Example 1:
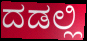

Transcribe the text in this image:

ದಡಲ್ಲಿ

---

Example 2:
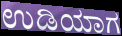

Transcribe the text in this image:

ಉಡಿಯಾಗ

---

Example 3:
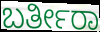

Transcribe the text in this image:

ಬರ್ತೀರಾ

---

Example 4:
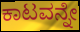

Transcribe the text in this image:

ಕಾಟವನ್ನೇ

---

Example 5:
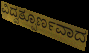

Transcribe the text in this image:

ವಿದ್ವತ್ಪೂರ್ಣವಾದ